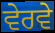
ਵੇਰਵੇ